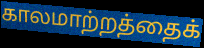
காலமாற்றத்தைக்